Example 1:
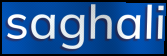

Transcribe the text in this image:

saghali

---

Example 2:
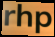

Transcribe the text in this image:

rhp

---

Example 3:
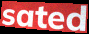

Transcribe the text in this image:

sated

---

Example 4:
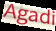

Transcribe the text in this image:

Agadi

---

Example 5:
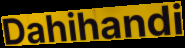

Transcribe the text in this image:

Dahihandi